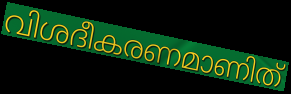
വിശദീകരണമാണിത്